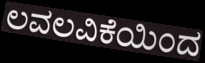
ಲವಲವಿಕೆಯಿಂದ